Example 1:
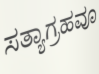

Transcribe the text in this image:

ಸತ್ಯಾಗ್ರಹವೂ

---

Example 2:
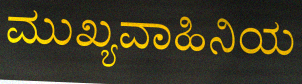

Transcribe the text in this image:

ಮುಖ್ಯವಾಹಿನಿಯ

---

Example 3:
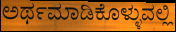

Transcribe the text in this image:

ಅರ್ಥಮಾಡಿಕೊಳ್ಳುವಲ್ಲಿ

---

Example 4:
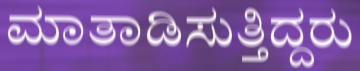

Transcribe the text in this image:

ಮಾತಾಡಿಸುತ್ತಿದ್ದರು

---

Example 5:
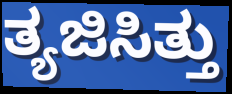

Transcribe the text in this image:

ತ್ಯಜಿಸಿತ್ತು